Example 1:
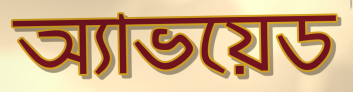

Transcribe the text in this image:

অ্যাভয়েড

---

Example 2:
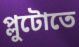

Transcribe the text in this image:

প্লুটোতে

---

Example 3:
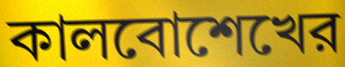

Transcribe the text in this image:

কালবোশেখের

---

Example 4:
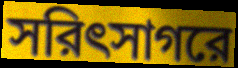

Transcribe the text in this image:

সরিৎসাগরে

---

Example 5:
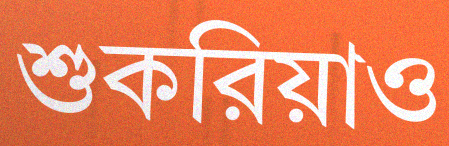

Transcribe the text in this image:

শুকরিয়াও